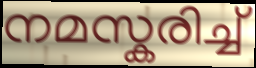
നമസ്കരിച്ച്